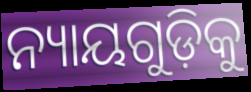
ନ୍ୟାୟଗୁଡ଼ିକୁ